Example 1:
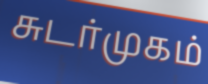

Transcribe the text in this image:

சுடர்முகம்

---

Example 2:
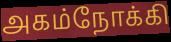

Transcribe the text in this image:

அகம்நோக்கி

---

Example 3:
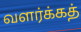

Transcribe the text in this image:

வளர்க்கத்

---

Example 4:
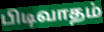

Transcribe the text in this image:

பிடிவாதம்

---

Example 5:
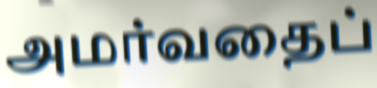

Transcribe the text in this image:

அமர்வதைப்